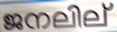
ജനലില്